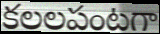
కలలపంటగా